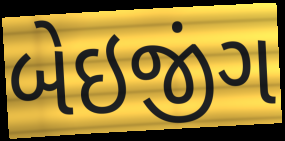
બેઇજીંગ